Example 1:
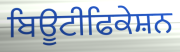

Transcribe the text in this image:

ਬਿਊਟੀਫਿਕੇਸ਼ਨ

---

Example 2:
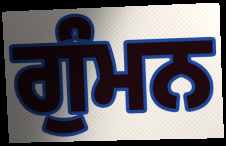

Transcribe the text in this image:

ਗੁੰਮਨ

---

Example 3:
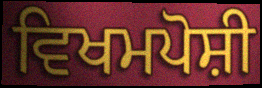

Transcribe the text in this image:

ਵਿਖਮਪੋਸ਼ੀ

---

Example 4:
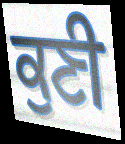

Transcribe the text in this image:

ਕੁਣੀ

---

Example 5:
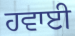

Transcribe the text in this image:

ਹਵਾਈ